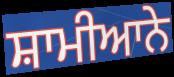
ਸ਼ਾਮੀਆਨੇ